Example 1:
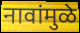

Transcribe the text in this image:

नावांमुळे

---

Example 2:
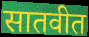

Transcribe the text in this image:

सातवीत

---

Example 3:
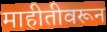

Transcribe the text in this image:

माहीतीवरून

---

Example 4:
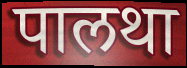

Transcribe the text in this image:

पालथा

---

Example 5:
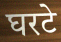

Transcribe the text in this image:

घरटे